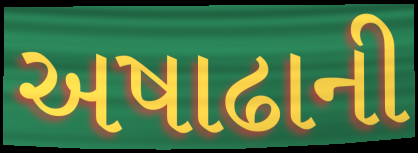
અષાઢાની